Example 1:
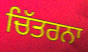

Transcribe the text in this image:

ਚਿੱਤਰਨਾ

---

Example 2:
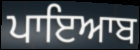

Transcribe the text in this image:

ਪਾਇਆਬ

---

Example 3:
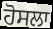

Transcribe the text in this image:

ਹੋਸਲਾ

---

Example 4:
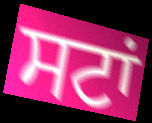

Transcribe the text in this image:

ਸਟਾਂ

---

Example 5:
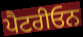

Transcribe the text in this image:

ਪੈਟਰੀਓਨ